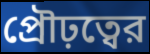
প্রৌঢ়ত্বের